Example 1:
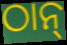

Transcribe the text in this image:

ଠାନ୍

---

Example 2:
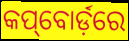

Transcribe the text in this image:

କପ୍‌ବୋର୍ଡ଼ରେ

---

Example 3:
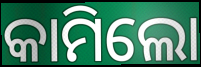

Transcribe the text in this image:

କାମିଲୋ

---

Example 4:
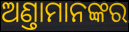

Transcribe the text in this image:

ଅଣ୍ତାମାନଙ୍କର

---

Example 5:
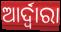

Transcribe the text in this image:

ଆର୍ଦ୍ୱାରା